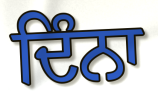
ਦਿੰਨਾ